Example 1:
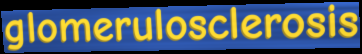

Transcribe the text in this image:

glomerulosclerosis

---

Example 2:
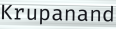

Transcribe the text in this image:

Krupanand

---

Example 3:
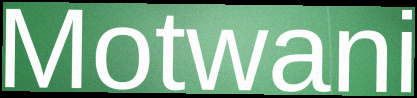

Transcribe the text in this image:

Motwani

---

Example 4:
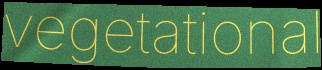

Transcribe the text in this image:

vegetational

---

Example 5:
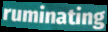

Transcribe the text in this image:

ruminating